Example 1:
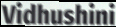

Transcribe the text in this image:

Vidhushini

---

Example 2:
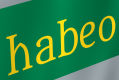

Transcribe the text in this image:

habeo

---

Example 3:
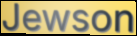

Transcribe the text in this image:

Jewson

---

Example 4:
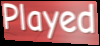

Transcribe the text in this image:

Played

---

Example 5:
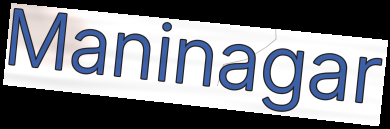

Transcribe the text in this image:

Maninagar